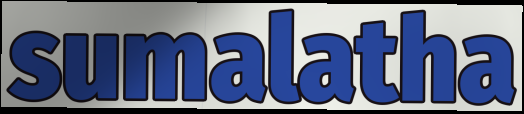
sumalatha